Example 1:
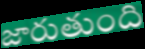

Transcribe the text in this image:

జారుతుంది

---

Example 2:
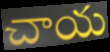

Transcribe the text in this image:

చాయ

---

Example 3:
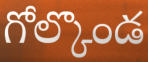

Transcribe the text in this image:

గోల్కొండ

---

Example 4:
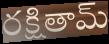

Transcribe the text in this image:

రక్షితామ్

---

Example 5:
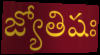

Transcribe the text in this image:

జ్యోతిషః